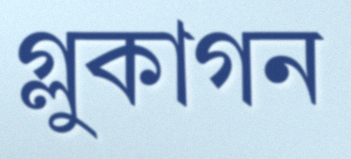
গ্লুকাগন